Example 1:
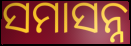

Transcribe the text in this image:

ସମାସନ୍ନ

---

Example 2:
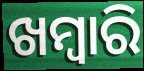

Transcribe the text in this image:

ଖମ୍ୱାରି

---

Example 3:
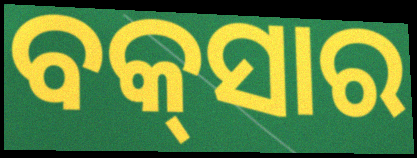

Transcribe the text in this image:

ବକ୍‌ସାର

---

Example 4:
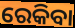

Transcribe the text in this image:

ରେକିବା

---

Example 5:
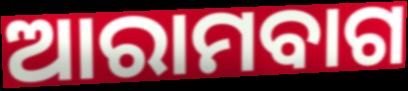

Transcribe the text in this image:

ଆରାମବାଗ